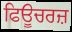
ਫਿਊਚਰਜ਼